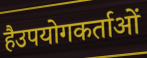
हैउपयोगकर्ताओं